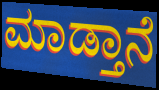
ಮಾಡ್ತಾನೆ